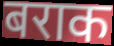
बराक